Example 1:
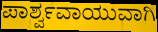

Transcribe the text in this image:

ಪಾರ್ಶ್ವವಾಯುವಾಗಿ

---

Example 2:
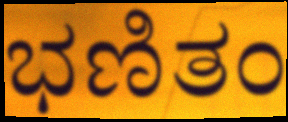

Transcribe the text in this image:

ಭಣಿತಂ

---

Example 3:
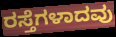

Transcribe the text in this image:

ರಸ್ತೆಗಳಾದವು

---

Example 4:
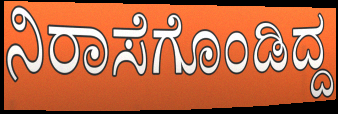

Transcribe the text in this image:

ನಿರಾಸೆಗೊಂಡಿದ್ದ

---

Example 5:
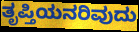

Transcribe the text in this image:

ತೃಪ್ತಿಯನರಿವುದು